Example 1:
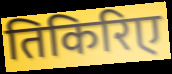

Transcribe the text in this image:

तिकिरिए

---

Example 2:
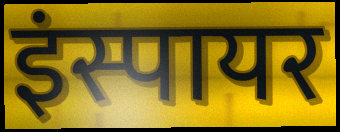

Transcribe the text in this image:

इंस्पायर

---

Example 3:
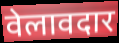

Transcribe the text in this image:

वेलावदार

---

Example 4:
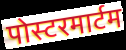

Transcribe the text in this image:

पोस्टरमार्टम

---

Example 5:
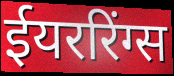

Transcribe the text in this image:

ईयररिंग्स